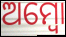
ଅମ୍ୱୋ